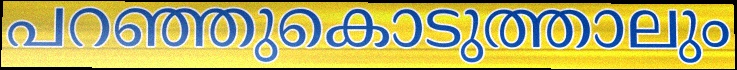
പറഞ്ഞുകൊടുത്താലും